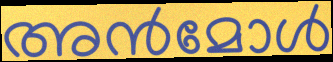
അൻമോൾ